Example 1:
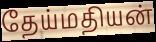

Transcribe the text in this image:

தேய்மதியன்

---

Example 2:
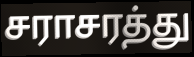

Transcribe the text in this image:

சராசரத்து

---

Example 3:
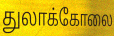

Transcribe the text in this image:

துலாக்கோலை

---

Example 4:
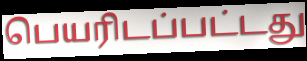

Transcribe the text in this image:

பெயரிடப்பட்டது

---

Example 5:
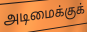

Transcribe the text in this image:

அடிமைக்குக்